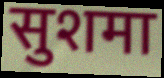
सुशमा